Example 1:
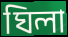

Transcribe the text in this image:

ঘিলা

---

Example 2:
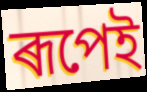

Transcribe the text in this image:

ৰূপেই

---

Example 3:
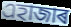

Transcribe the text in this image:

এহাজাৰ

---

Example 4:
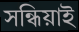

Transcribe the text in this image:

সন্ধিয়াই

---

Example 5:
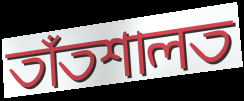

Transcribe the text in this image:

তাঁতশালত